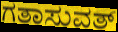
ಗತಾಸುವತ್